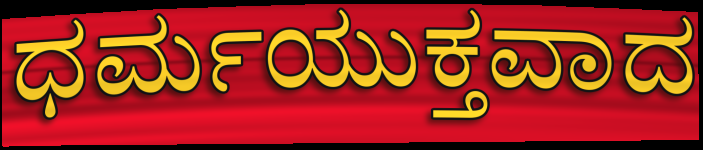
ಧರ್ಮಯುಕ್ತವಾದ